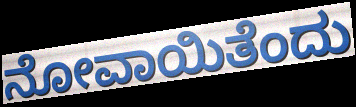
ನೋವಾಯಿತೆಂದು